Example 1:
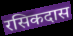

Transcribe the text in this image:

रसिकदास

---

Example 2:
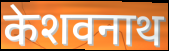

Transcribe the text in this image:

केशवनाथ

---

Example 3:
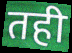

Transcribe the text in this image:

तही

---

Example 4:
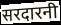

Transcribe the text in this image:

सरदारनी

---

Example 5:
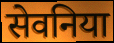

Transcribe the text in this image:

सेवनिया